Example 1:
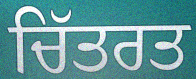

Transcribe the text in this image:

ਚਿੱਤਰਤ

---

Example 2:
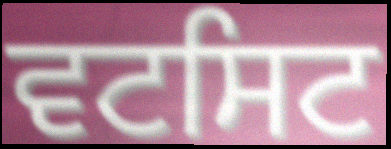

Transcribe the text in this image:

ਵਟਸਿਟ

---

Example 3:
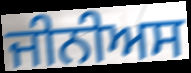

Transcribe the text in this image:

ਜੀਨੀਅਸ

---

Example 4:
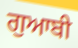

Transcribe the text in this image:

ਗੁਆਬੀ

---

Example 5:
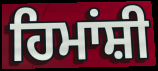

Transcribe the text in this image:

ਹਿਮਾਂਸ਼ੀ